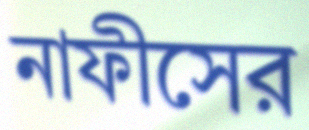
নাফীসের